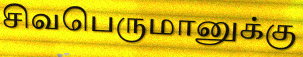
சிவபெருமானுக்கு